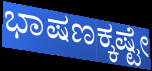
ಭಾಷಣಕ್ಕಷ್ಟೇ